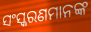
ସଂସ୍କରଣମାନଙ୍କ